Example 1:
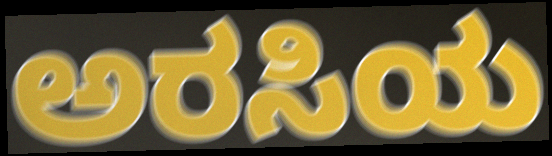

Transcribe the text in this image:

ಅರಸಿಯ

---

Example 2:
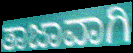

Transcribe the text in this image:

ತಾಜಾವಾಗಿ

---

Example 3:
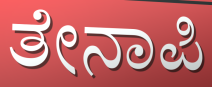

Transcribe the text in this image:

ತೇನಾಪಿ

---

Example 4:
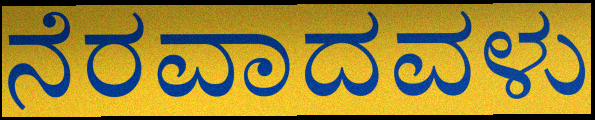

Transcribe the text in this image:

ನೆರವಾದವಳು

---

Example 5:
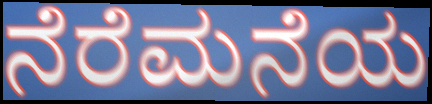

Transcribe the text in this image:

ನೆರೆಮನೆಯ